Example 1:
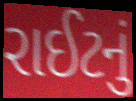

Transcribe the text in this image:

રાઈટનું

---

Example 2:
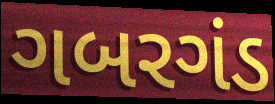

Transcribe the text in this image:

ગબરગંડ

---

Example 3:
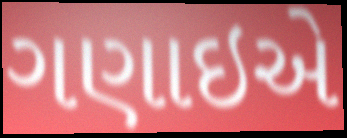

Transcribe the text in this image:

ગણાઇએ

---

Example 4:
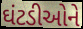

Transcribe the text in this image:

ઘંટડીઓને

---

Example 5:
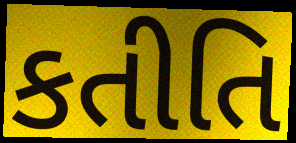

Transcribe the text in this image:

કતીતિ